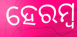
ହେରମ୍ୱ